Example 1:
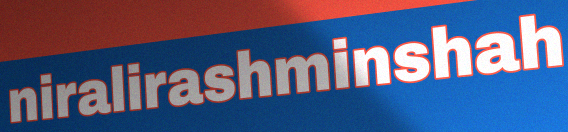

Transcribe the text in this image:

niralirashminshah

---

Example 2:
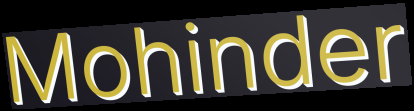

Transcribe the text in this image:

Mohinder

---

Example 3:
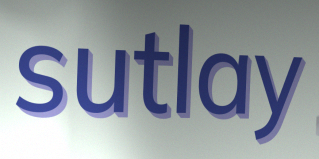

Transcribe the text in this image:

sutlay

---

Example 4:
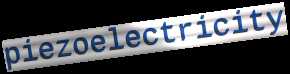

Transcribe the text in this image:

piezoelectricity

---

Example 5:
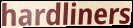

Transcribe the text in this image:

hardliners